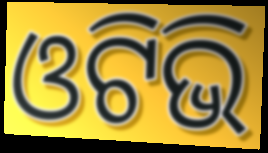
ଓଟିଭି